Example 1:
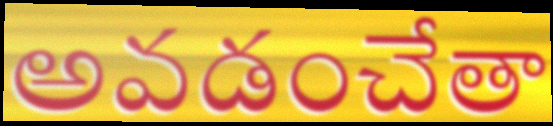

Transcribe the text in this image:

అవడంచేతా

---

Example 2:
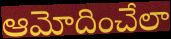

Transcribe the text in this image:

ఆమోదించేలా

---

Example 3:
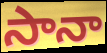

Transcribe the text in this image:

సానా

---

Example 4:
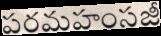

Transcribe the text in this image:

పరమహంసజీ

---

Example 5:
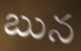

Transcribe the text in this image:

బున